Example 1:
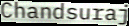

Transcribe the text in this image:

Chandsuraj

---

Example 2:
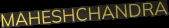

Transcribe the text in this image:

MAHESHCHANDRA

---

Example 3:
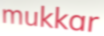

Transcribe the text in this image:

mukkar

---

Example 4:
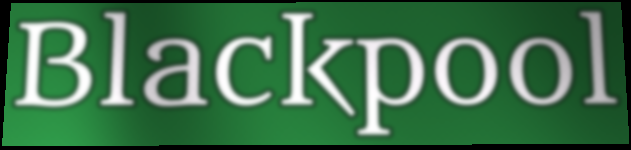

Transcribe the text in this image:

Blackpool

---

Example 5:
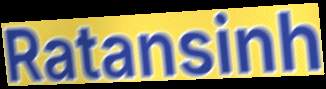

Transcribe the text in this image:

Ratansinh